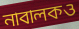
নাবালকও